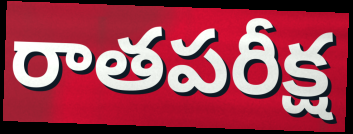
రాతపరీక్ష